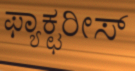
ಫ್ಯಾಕ್ಟರೀಸ್